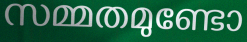
സമ്മതമുണ്ടോ